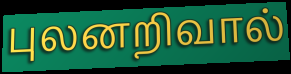
புலனறிவால்